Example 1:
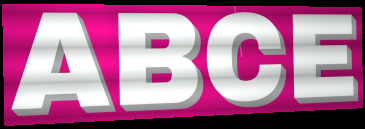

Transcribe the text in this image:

ABCE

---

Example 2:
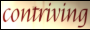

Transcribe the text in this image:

contriving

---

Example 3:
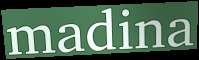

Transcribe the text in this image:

madina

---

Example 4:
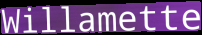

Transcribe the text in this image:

Willamette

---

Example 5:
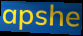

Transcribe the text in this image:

apshe